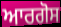
ਆਰਗੋਸ